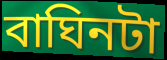
বাঘিনটা